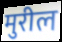
मुरील